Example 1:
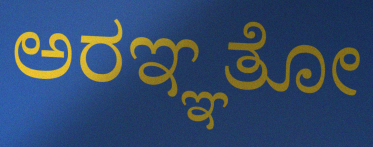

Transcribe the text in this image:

ಅರಞ್ಞತೋ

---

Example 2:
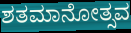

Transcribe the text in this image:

ಶತಮಾನೋತ್ಸವ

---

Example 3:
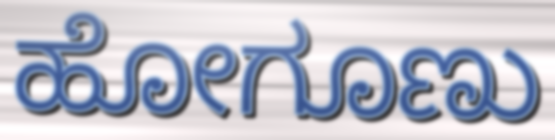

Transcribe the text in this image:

ಹೋಗೂಣು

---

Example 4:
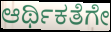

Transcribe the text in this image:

ಆರ್ಥಿಕತೆಗೇ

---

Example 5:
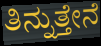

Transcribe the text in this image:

ತಿನ್ನುತ್ತೇನೆ